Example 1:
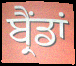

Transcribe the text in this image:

ਬ੍ਰੈਂਡਾਂ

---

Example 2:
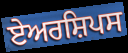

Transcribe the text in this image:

ਏਅਰਸ਼ਿਪਸ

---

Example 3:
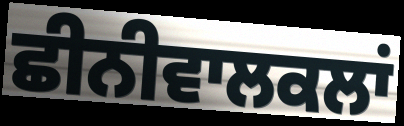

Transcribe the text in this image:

ਛੀਨੀਵਾਲਕਲਾਂ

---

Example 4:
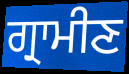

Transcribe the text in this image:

ਗ੍ਰਾਮੀਣ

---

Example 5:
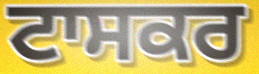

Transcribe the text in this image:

ਟਾਸਕਰ